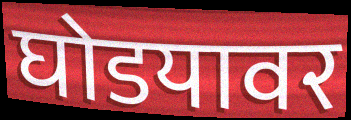
घोडयावर